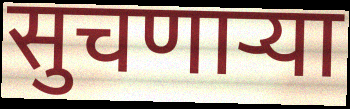
सुचणाऱ्या